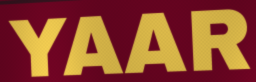
YAAR